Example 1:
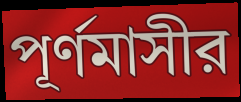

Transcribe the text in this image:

পূর্ণমাসীর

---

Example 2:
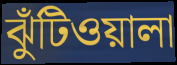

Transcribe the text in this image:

ঝুঁটিওয়ালা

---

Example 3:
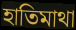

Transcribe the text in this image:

হাতিমাথা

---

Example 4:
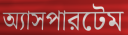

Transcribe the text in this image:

অ্যাসপারটেম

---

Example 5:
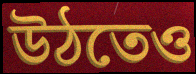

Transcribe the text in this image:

উঠতেও